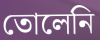
তোলেনি